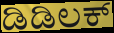
ಡಿಡಿಲಕ್